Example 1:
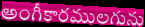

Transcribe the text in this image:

అంగీకారములగును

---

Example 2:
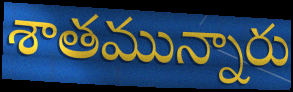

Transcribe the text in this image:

శాతమున్నారు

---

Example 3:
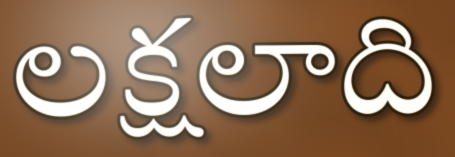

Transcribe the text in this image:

లక్షలాది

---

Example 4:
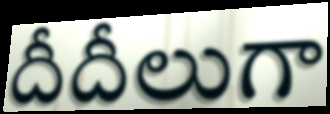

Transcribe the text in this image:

దీదీలుగా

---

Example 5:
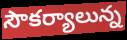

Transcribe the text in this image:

సౌకర్యాలున్న